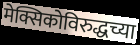
मेक्सिकोविरुद्धच्या